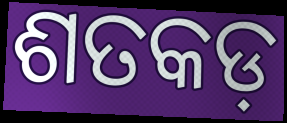
ଶତକଡ଼